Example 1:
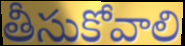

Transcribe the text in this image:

తీసుకోవాలి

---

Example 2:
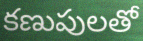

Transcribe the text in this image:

కణుపులతో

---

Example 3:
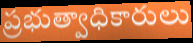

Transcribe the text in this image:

ప్రభుత్వాధికారులు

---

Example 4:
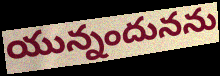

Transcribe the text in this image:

యున్నందునను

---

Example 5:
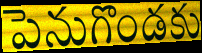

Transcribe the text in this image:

పెనుగొండకు